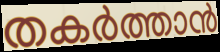
തകർത്താൻ